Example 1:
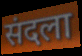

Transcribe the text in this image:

संदला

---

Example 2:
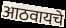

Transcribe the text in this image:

आठवायचे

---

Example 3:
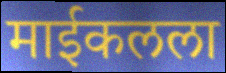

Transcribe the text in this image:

माईकलला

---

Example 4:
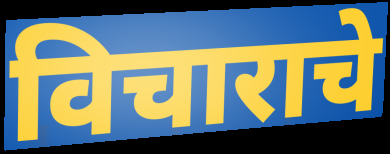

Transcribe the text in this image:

विचाराचे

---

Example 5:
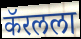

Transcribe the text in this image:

कॅरलला